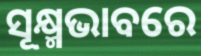
ସୂକ୍ଷ୍ମଭାବରେ